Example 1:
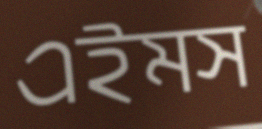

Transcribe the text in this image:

এইমস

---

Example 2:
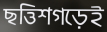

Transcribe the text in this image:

ছত্তিশগড়েই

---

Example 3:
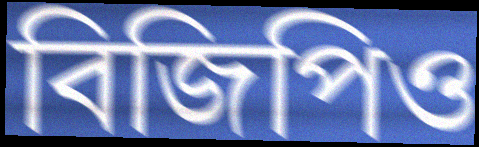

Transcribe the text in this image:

বিজিপিও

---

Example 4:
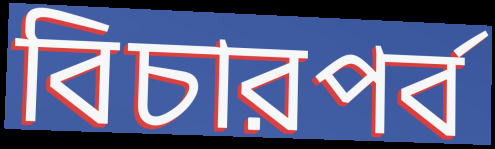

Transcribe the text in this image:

বিচারপর্ব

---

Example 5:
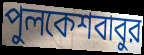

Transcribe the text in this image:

পুলকেশবাবুর